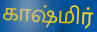
காஷ்மிர்